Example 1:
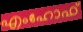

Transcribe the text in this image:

എംഹോഫ്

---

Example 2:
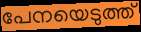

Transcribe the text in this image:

പേനയെടുത്ത്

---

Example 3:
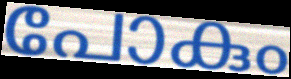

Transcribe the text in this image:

പോകും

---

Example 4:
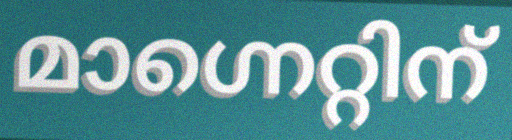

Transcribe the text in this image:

മാഗ്നെറ്റിന്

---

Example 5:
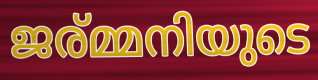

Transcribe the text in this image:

ജര്മ്മനിയുടെ